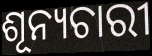
ଶୂନ୍ୟଚାରୀ